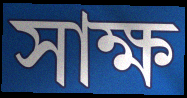
সাক্ষ